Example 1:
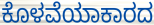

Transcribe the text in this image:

ಕೊಳವೆಯಾಕಾರದ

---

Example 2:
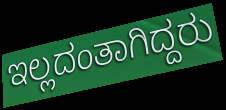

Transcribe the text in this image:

ಇಲ್ಲದಂತಾಗಿದ್ದರು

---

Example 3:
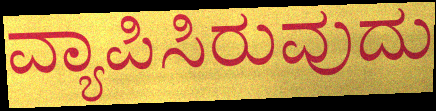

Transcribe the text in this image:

ವ್ಯಾಪಿಸಿರುವುದು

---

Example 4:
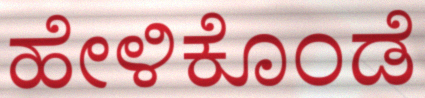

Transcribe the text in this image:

ಹೇಳಿಕೊಂಡೆ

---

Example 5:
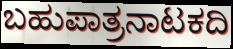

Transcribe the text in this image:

ಬಹುಪಾತ್ರನಾಟಕದಿ